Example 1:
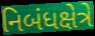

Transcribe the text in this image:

નિબંધક્ષેત્રે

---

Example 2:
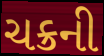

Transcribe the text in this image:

ચક્રની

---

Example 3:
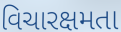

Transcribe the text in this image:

વિચારક્ષમતા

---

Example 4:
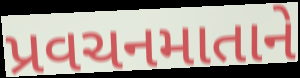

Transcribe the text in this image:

પ્રવચનમાતાને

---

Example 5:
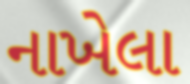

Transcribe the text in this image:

નાખેલા